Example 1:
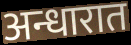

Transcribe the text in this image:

अन्धारात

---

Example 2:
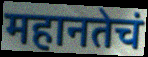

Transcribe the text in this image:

महानतेचं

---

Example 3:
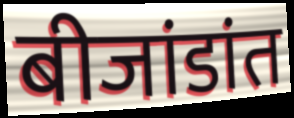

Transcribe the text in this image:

बीजांडांत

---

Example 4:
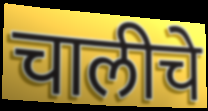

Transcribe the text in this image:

चालीचे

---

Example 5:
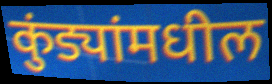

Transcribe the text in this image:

कुंड्यांमधील